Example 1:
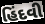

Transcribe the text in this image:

હિંદવી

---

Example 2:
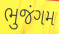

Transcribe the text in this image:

ભુજંગમ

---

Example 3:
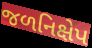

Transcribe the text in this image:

જળનિક્ષેપ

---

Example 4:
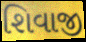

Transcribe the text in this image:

શિવાજી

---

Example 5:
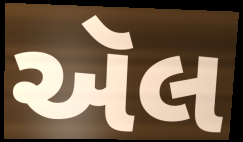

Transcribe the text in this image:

ઍલ